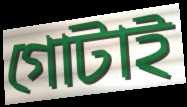
গোটাই